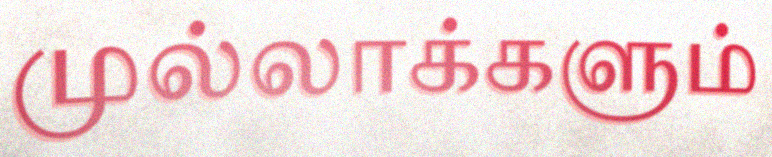
முல்லாக்களும்